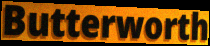
Butterworth